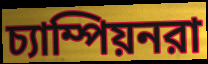
চ্যাম্পিয়নরা